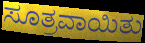
ಸೂತ್ರವಾಯಿತು